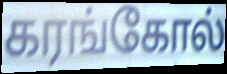
கரங்கோல்